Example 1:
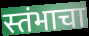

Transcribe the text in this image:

स्तंभाचा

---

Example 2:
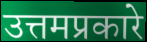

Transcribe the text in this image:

उत्तमप्रकारे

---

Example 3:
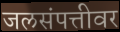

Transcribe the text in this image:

जलसंपत्तीवर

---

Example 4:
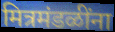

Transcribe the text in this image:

मित्रमंडळींना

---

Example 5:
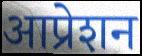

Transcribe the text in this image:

आप्रेशन